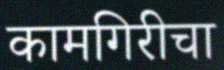
कामगिरीचा